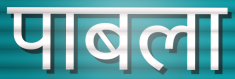
पाबला